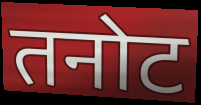
तनोट